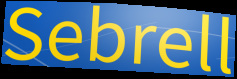
Sebrell